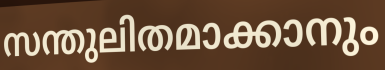
സന്തുലിതമാക്കാനും